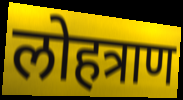
लोहत्राण